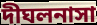
দীঘলনাসা